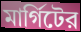
মার্গিটের